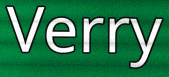
Verry